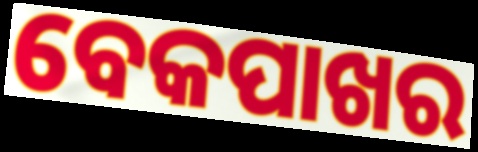
ବେକପାଖର